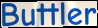
Buttler